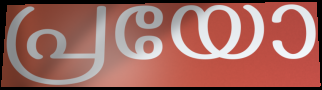
പ്രയോ